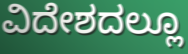
ವಿದೇಶದಲ್ಲೂ